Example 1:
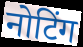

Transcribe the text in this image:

नोटिंग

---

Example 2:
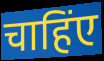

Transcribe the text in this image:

चाहिंए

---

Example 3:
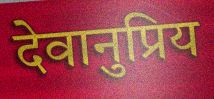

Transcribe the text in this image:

देवानुप्रिय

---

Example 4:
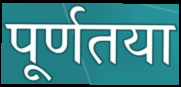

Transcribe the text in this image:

पूर्णतया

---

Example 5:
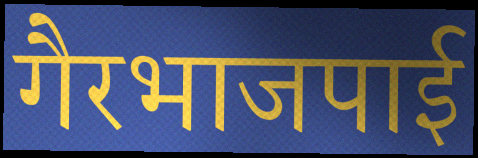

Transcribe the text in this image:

गैरभाजपाई